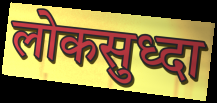
लोकसुध्दा